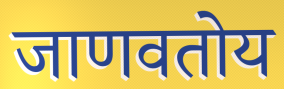
जाणवतोय